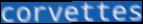
corvettes